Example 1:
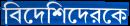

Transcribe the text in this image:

বিদেশিদেরকে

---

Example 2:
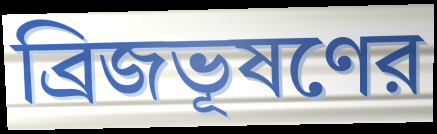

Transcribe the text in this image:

ব্রিজভূষণের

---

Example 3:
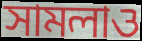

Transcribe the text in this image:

সামলাও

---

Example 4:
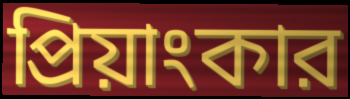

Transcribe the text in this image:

প্রিয়াংকার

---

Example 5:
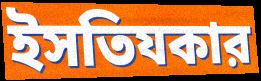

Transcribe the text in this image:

ইসতিযকার